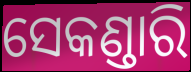
ସେକଣ୍ଡାରି